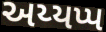
અય્યપ્પ